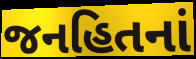
જનહિતનાં